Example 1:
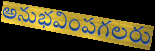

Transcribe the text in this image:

అనుభవింపగలరు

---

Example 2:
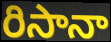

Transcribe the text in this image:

రిసానా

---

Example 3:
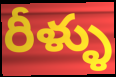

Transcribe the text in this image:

రీళ్ళు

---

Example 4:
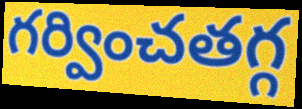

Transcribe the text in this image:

గర్వించతగ్గ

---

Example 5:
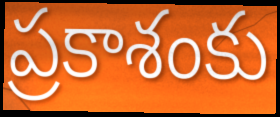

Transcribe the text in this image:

ప్రకాశంకు